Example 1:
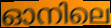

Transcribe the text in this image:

ഓനിലെ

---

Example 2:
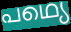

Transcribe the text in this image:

പഥ്യെ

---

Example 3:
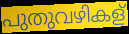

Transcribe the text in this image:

പുതുവഴികള്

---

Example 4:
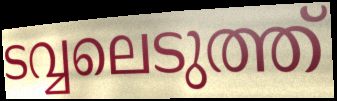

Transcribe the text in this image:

ടവ്വലെടുത്ത്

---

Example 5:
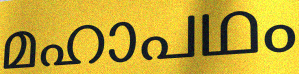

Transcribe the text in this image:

മഹാപഥം